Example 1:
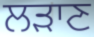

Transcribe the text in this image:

ਲੜਾਣ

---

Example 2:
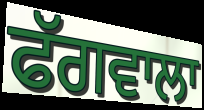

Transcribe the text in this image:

ਫੱਗਵਾਲਾ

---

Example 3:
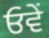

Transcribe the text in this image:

ਓਵੇਂ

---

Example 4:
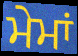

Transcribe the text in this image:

ਮੇਮਾਂ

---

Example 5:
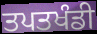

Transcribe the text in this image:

ਤਪਤਖੰਡੀ